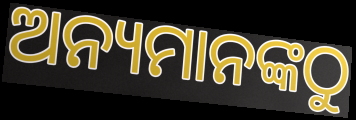
ଅନ୍ୟମାନଙ୍କଠୁ